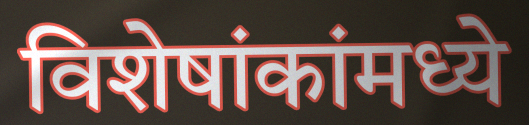
विशेषांकांमध्ये